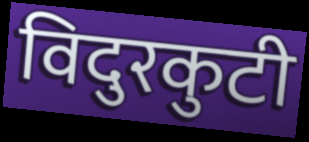
विदुरकुटी